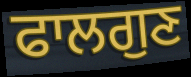
ਫਾਲਗੁਣ